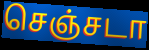
செஞ்சடா